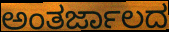
ಅಂತರ್ಜಾಲದ